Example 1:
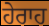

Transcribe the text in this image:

ਹੇਰਾਹ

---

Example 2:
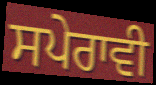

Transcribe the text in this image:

ਸਪੇਰਾਵੀ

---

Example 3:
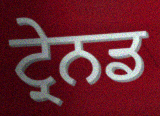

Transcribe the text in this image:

ਟ੍ਰੇਨਡ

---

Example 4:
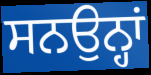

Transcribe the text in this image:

ਸਨਉਨ੍ਹਾਂ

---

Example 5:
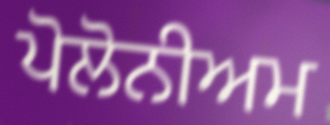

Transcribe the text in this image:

ਪੋਲੋਨੀਅਮ